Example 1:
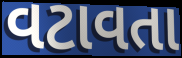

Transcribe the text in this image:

વટાવતા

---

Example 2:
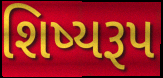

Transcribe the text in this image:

શિષ્યરૂપ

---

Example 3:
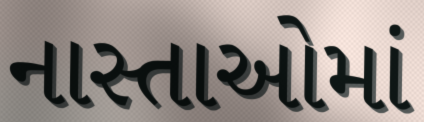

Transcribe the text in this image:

નાસ્તાઓમાં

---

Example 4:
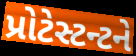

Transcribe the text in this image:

પ્રોટેસ્ટન્ટને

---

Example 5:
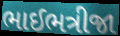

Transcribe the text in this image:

ભાઈભત્રીજા